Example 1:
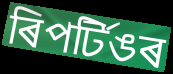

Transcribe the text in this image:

ৰিপৰ্টিঙৰ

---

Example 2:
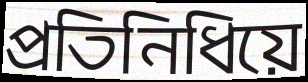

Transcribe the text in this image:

প্ৰতিনিধিয়ে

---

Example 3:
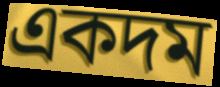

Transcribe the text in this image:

একদম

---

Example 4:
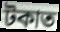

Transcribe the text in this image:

টকাত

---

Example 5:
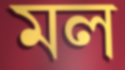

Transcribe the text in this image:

মল